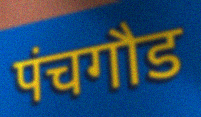
पंचगौड